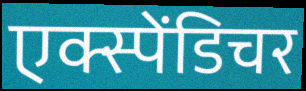
एक्स्पेंडिचर